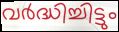
വർദ്ധിച്ചിട്ടും